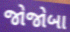
જોજોબા